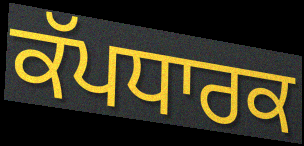
ਕੱਪਧਾਰਕ